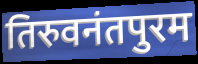
तिरुवनंतपुरम